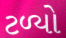
ટળ્યો